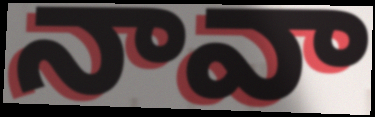
నావా